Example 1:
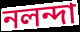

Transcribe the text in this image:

নলন্দা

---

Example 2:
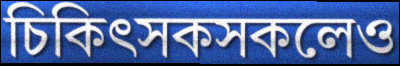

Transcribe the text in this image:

চিকিৎসকসকলেও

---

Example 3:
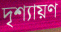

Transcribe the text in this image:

দৃশ্যায়ণ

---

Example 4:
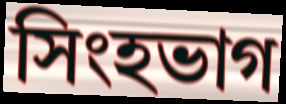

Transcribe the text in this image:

সিংহভাগ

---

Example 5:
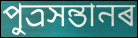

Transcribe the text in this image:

পুত্ৰসন্তানৰ